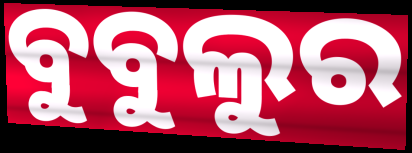
ବୁବୁଲୁର